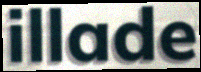
illade